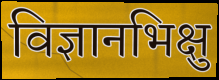
विज्ञानभिक्षु